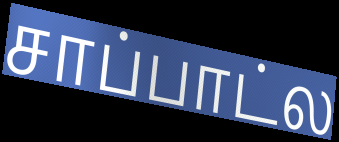
சாப்பாட்ல